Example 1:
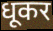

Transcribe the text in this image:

धूकर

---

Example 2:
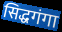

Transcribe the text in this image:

सिद्धगंगा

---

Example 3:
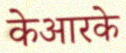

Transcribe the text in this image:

केआरके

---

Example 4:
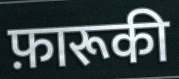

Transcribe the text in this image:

फ़ारूकी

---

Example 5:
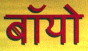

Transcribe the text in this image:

बॉयो